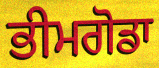
ਭੀਮਗੋਡਾ